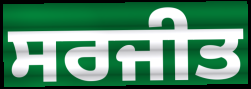
ਸਰਜੀਤ